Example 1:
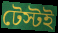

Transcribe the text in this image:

টেস্টই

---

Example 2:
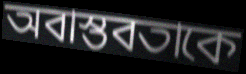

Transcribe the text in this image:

অবাস্তবতাকে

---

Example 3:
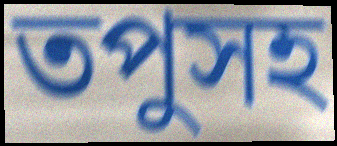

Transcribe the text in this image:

তপুসহ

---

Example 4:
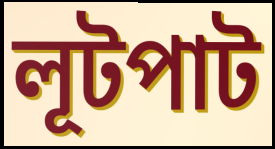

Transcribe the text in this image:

লূটপাট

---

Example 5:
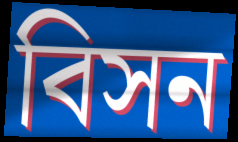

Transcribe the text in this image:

বিসন